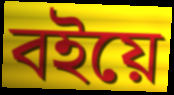
বইয়ে